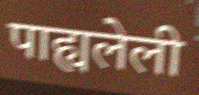
पाह्यलेली